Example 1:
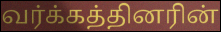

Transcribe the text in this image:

வர்க்கத்தினரின்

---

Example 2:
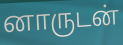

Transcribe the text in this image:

னாருடன்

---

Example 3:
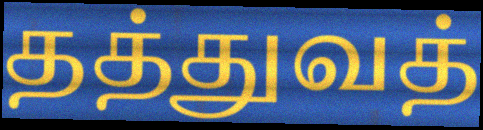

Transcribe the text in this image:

தத்துவத்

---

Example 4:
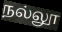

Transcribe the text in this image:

நல்லூ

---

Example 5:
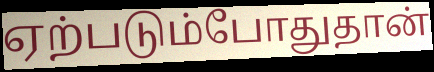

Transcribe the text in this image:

ஏற்படும்போதுதான்